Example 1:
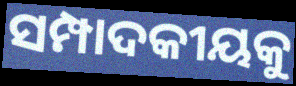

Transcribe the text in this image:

ସମ୍ପାଦକୀୟକୁ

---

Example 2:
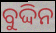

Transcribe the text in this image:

ବୁଦ୍ଦିନ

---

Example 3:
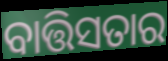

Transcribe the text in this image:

ବାତ୍ତିସତାର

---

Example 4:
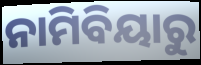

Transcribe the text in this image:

ନାମିବିୟାରୁ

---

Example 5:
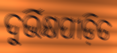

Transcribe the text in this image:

ଦୁର୍ଭିକ୍ଷପୀଡ଼ିତ